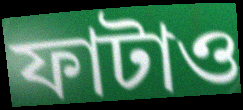
ফাটাও